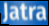
Jatra